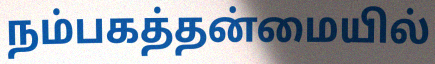
நம்பகத்தன்மையில்